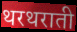
थरथराती